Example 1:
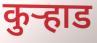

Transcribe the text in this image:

कुर्‍हाड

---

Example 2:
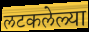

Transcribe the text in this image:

लटकलेल्या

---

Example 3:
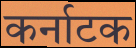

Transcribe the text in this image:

कर्नाटक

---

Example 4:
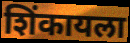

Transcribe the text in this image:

शिंकायला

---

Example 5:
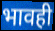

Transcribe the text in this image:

भावही